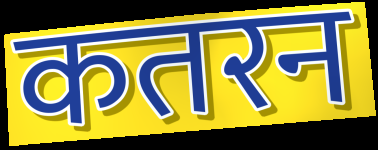
कतरन